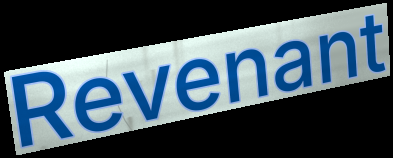
Revenant